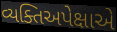
વ્યક્તિઅપેક્ષાએ